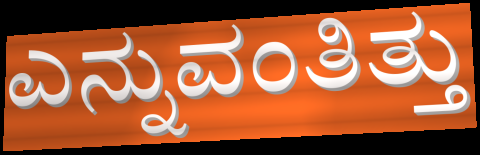
ಎನ್ನುವಂತಿತ್ತು